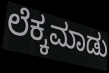
ಲೆಕ್ಕಮಾಡು